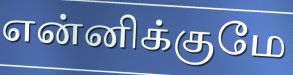
என்னிக்குமே